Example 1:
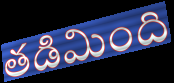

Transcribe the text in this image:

తడిమింది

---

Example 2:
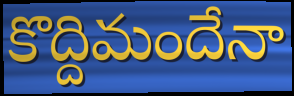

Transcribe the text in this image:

కొద్దిమందేనా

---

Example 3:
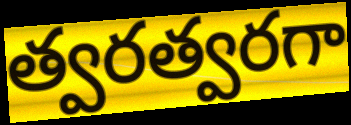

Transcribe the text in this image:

త్వరత్వరగా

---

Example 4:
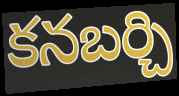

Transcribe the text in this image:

కనబర్చి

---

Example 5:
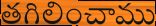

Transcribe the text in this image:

తగిలించాము